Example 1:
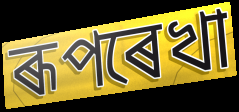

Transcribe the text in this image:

ৰূপৰেখা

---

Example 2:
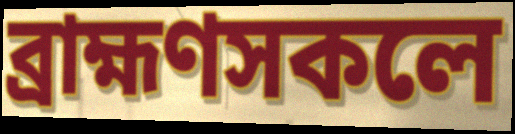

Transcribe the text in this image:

ব্ৰাহ্মণসকলে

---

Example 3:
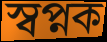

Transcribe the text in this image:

স্বপ্নক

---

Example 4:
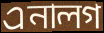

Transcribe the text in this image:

এনালগ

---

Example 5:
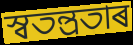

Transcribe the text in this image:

স্বতন্ত্ৰতাৰ